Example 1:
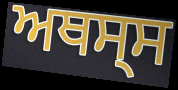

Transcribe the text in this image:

ਅਥਸ੍ਸ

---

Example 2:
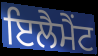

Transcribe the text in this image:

ਇਲੈਮੈਂਟ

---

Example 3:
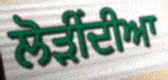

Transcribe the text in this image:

ਲੋੜੀਂਦੀਆ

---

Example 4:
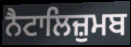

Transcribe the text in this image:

ਨੈਟਾਲਿਜ਼ੁਮਬ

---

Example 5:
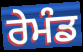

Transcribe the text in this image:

ਰੇਮੰਡ